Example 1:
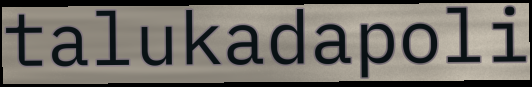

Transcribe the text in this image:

talukadapoli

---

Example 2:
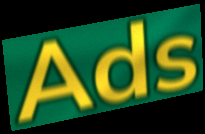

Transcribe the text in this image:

Ads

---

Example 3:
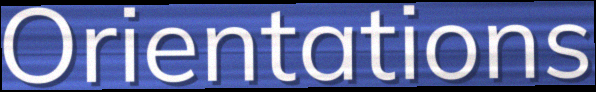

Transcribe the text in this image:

Orientations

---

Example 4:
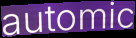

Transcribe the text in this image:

automic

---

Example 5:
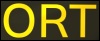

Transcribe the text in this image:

ORT